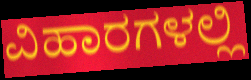
ವಿಹಾರಗಳಲ್ಲಿ